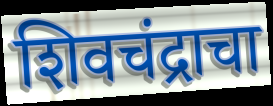
शिवचंद्राचा